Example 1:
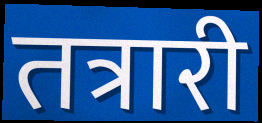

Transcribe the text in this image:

तत्रारी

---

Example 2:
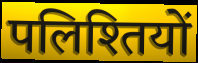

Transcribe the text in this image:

पलिश्‍तियों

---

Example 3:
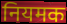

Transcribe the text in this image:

नियमक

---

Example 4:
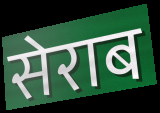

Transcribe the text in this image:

सेराब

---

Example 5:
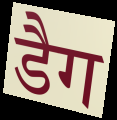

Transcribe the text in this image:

डैग